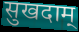
सुखदाम्